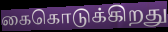
கைகொடுக்கிறது